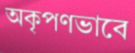
অকৃপণভাবে